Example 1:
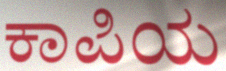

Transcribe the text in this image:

ಕಾಪಿಯ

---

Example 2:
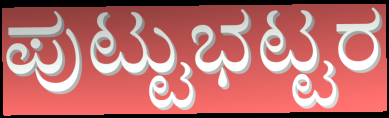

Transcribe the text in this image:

ಪುಟ್ಟುಭಟ್ಟರ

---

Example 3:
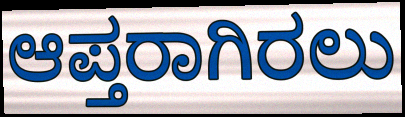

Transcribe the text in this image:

ಆಪ್ತರಾಗಿರಲು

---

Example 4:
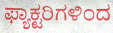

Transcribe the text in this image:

ಫ್ಯಾಕ್ಟರಿಗಳಿಂದ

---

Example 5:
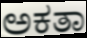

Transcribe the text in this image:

ಅಕತಾ